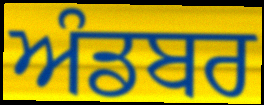
ਅੰਡਬਰ